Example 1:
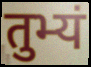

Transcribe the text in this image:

तुभ्यं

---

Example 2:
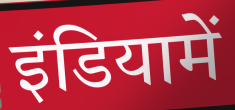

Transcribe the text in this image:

इंडियामें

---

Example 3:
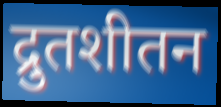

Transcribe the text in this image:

द्रुतशीतन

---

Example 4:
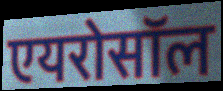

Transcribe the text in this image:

एयरोसॉल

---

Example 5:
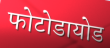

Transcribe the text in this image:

फोटोडायोड